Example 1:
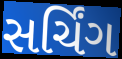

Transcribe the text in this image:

સર્ચિંગ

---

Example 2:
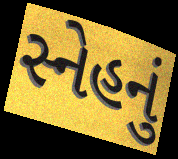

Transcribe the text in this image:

સ્નેહનું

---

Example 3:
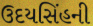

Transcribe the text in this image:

ઉદયસિંહની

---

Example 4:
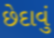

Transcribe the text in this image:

છેદાવું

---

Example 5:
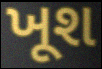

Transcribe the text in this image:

ખૂશ